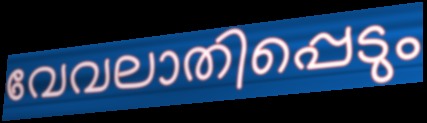
വേവലാതിപ്പെടും